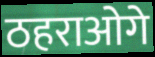
ठहराओगे